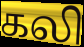
கலி